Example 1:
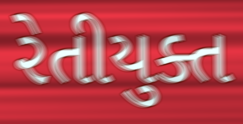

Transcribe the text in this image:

રેતીયુક્ત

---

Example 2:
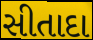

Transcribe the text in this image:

સીતાદા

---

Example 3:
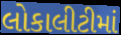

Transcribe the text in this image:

લોકાલીટીમાં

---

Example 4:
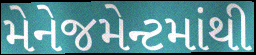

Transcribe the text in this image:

મેનેજમેન્ટમાંથી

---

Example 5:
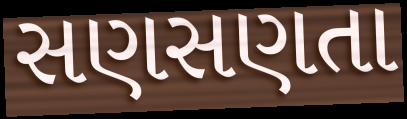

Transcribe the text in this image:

સણસણતા